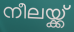
നീലയ്ക്ക്